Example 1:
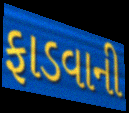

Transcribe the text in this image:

ફાડવાની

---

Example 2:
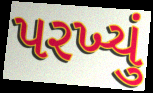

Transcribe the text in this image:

પરખ્યું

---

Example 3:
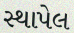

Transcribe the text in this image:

સ્થાપેલ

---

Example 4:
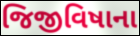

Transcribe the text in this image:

જિજીવિષાના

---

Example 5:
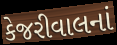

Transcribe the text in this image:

કેજરીવાલનાં